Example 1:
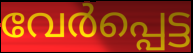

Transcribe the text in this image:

വേർപ്പെട്ട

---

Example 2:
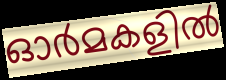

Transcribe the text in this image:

ഓർമകളിൽ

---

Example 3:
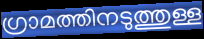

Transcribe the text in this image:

ഗ്രാമത്തിനടുത്തുള്ള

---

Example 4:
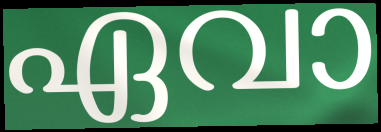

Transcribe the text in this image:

ഏവാ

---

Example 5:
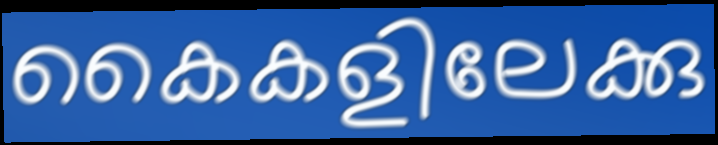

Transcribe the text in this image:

കൈകളിലേക്കു